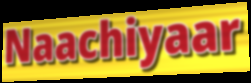
Naachiyaar